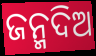
ଜନ୍ମଦିଅ